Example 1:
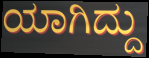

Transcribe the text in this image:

ಯಾಗಿದ್ದು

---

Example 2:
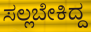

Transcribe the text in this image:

ಸಲ್ಲಬೇಕಿದ್ದ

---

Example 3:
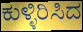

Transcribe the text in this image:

ಕುಳ್ಳಿರಿಸಿದ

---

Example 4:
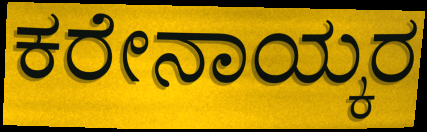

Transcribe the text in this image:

ಕರೇನಾಯ್ಕರ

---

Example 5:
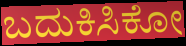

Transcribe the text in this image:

ಬದುಕಿಸಿಕೋ